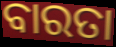
ବାରତା